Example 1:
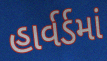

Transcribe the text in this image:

હાર્વર્ડમાં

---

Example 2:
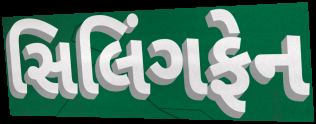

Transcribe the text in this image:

સિલિંગફેન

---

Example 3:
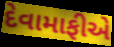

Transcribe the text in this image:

દેવામાફીએ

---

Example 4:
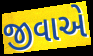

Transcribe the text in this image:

જીવાએ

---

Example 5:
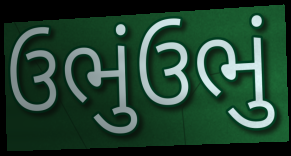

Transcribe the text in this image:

ઉભુંઉભું